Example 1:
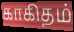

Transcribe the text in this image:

காகிதம்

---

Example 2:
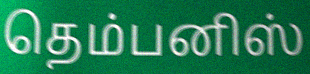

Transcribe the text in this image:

தெம்பனிஸ்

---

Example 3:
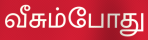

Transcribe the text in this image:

வீசும்போது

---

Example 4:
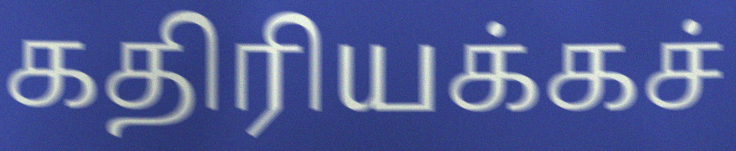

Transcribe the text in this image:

கதிரியக்கச்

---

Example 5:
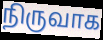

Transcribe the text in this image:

நிருவாக